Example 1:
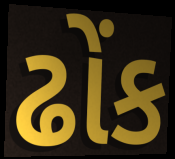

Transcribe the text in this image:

ઢોંક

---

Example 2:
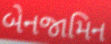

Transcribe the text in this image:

બેનજામિન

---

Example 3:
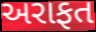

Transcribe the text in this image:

અરાફત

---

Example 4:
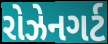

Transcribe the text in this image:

રોઝેનગર્ટ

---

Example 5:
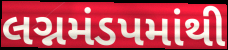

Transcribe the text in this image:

લગ્નમંડપમાંથી